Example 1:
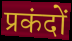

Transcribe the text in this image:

प्रकंदों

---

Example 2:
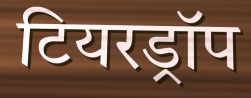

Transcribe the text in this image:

टियरड्रॉप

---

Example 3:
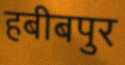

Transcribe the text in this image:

हबीबपुर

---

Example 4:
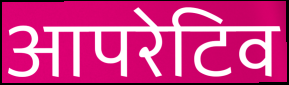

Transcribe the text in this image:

आपरेटिव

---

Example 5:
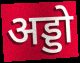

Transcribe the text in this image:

अड्डो